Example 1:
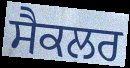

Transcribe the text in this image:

ਸੈਕਲਰ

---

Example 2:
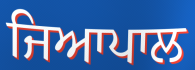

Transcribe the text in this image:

ਜਿਆਪਾਲ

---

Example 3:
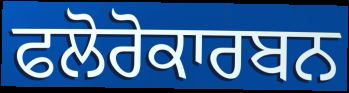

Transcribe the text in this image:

ਫਲੋਰੋਕਾਰਬਨ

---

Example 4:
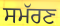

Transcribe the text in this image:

ਸਮੱਰਣ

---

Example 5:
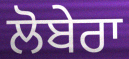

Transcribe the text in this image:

ਲੋਬੇਰਾ